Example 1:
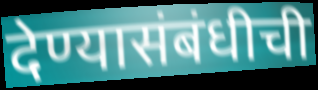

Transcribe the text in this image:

देण्यासंबंधीची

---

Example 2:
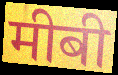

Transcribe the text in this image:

मीबी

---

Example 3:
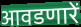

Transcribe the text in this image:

आवडणारें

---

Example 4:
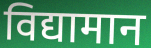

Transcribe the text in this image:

विद्यामान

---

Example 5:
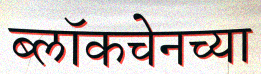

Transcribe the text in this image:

ब्लॉकचेनच्या